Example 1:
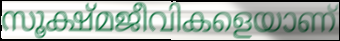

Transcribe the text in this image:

സൂക്ഷ്മജീവികളെയാണ്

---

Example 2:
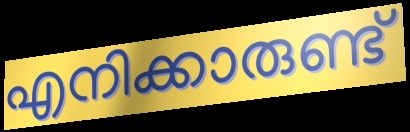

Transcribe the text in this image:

എനിക്കാരുണ്ട്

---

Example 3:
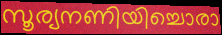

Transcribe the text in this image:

സൂര്യനണിയിച്ചൊരാ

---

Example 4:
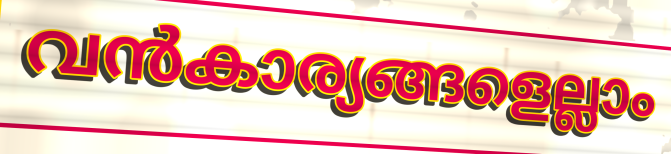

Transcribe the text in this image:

വൻകാര്യങ്ങളെല്ലാം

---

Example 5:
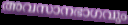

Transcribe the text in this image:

അവസാനഭാഗവും